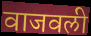
वाजवली